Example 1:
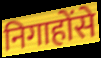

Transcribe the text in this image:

निगाहोंसे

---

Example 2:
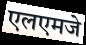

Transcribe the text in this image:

एलएमजे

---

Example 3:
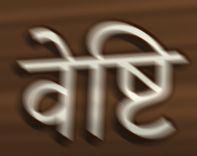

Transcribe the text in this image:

वेष्टि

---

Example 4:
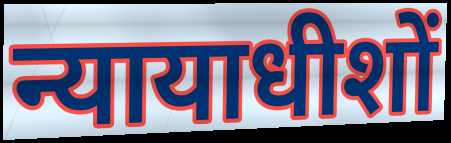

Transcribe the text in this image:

न्यायाधीशों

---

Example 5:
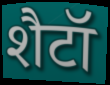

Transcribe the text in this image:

शैटॉ